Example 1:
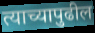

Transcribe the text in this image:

त्याच्यापुढील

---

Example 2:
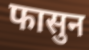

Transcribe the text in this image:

फासुन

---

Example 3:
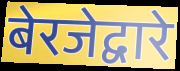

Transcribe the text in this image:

बेरजेद्वारे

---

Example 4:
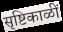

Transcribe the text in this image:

सृष्टिकाळीं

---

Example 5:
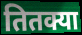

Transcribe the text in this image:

तितक्या